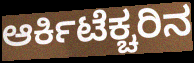
ಆರ್ಕಿಟೆಕ್ಚರಿನ